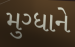
મુગ્ધાને